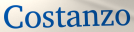
Costanzo